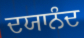
ਦਯਾਨੰਦ